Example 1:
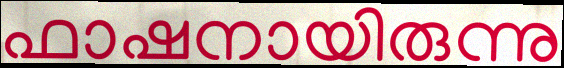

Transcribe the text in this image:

ഫാഷനായിരുന്നു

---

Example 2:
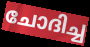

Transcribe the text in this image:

ചോദിച്ച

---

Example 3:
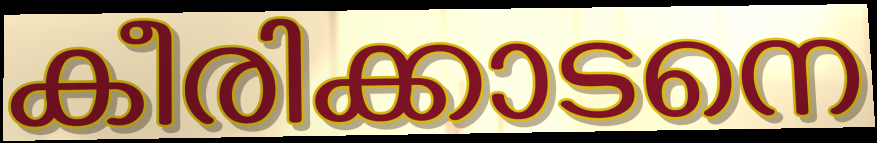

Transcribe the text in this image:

കീരിക്കാടനെ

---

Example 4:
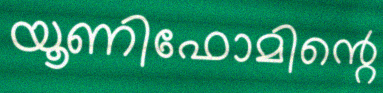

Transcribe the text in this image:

യൂണിഫോമിന്റെ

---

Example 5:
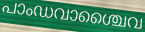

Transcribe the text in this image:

പാംഡവാശ്ചൈവ